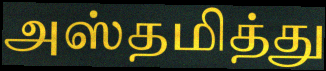
அஸ்தமித்து